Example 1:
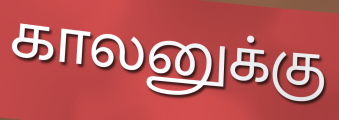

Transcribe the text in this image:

காலனுக்கு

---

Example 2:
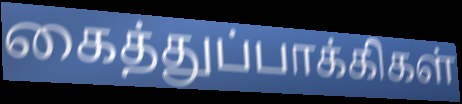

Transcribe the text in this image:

கைத்துப்பாக்கிகள்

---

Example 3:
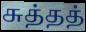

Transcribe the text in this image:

சுத்தத்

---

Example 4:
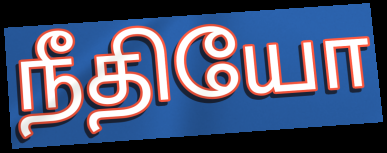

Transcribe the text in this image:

நீதியோ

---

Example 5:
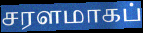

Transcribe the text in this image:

சரளமாகப்